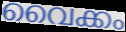
വൈക്കം